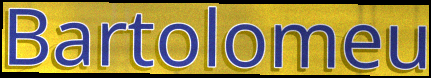
Bartolomeu